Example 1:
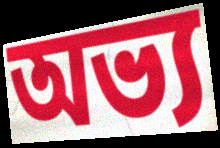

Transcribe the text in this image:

অভ্য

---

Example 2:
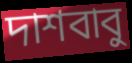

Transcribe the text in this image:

দাশবাবু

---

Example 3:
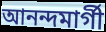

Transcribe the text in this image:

আনন্দমার্গী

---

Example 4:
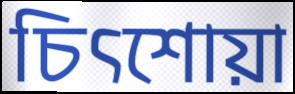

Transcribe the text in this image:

চিৎশোয়া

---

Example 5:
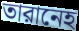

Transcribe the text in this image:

তারানেহ